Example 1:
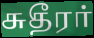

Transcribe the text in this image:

சுதீரர்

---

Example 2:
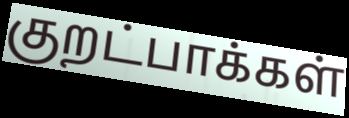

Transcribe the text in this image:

குறட்பாக்கள்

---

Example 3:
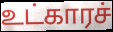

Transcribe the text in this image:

உட்காரச்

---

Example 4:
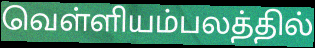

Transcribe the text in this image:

வெள்ளியம்பலத்தில்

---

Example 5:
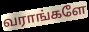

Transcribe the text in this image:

வராங்களே